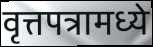
वृत्तपत्रामध्ये